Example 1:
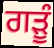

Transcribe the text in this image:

ਗੜੂੰ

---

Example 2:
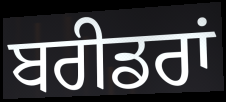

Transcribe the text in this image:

ਬਰੀਡਰਾਂ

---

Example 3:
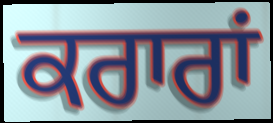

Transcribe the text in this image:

ਕਰਾਰਾਂ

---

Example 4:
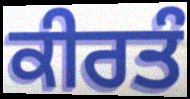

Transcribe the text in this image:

ਕੀਰਤੰ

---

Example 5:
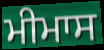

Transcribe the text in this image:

ਮੀਮਾਸ